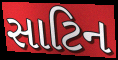
સાટિન